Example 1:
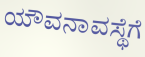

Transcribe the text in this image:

ಯೌವನಾವಸ್ಥೆಗೆ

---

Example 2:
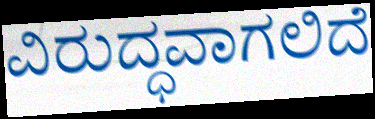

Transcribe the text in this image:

ವಿರುದ್ಧವಾಗಲಿದೆ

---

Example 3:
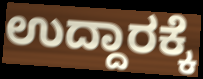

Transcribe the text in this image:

ಉದ್ದಾರಕ್ಕೆ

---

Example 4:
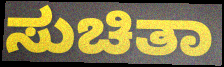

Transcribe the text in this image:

ಸುಚಿತಾ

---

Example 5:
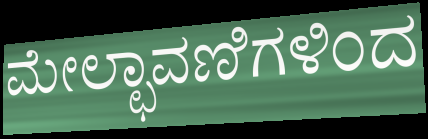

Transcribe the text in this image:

ಮೇಲ್ಛಾವಣಿಗಳಿಂದ